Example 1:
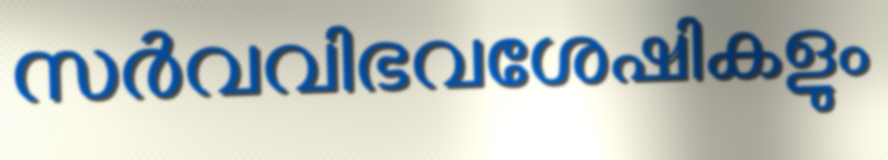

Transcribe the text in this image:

സർവവിഭവശേഷികളും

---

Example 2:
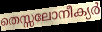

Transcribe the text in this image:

തെസ്സലോനീക്യർ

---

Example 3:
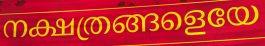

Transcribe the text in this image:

നക്ഷത്രങ്ങളെയേ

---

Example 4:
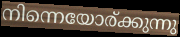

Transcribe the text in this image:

നിന്നെയോര്ക്കുന്നു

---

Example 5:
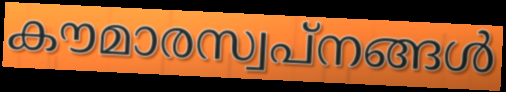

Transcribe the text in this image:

കൗമാരസ്വപ്നങ്ങൾ